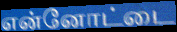
என்னோட்டை